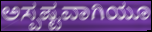
ಅಸ್ಪಷ್ಟವಾಗಿಯೂ